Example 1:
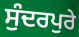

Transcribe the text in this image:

ਸੁੰਦਰਪੁਰੇ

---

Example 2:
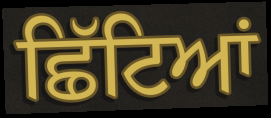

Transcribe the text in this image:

ਛਿੱਟਿਆਂ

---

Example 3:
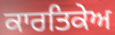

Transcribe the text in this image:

ਕਾਰਤਿਕੇਅ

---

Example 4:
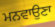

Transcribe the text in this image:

ਮਨਵਾਉਣਾ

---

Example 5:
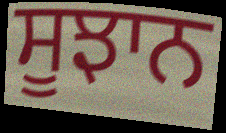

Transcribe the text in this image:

ਸੂਝਾਨ